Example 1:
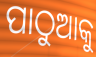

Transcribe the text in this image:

ପାଠୁଆକୁ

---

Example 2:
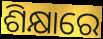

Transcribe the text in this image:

ଶିକ୍ଷାରେ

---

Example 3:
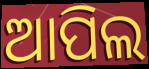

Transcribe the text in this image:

ଆପିଲ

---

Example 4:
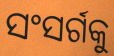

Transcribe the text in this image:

ସଂସର୍ଗକୁ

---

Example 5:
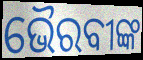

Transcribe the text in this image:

ଭୈରବୀଙ୍କ